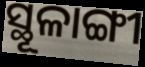
ସ୍ଥୂଳାଙ୍ଗୀ